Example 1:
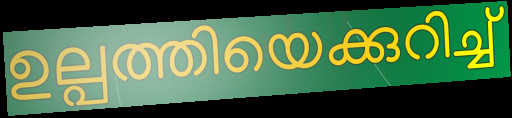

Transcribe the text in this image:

ഉല്പത്തിയെക്കുറിച്ച്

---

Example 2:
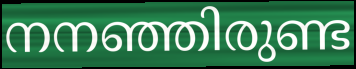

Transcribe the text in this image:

നനഞ്ഞിരുണ്ട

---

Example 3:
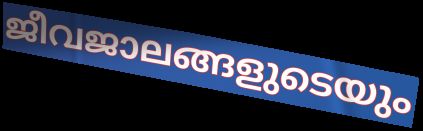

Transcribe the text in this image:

ജീവജാലങ്ങളുടെയും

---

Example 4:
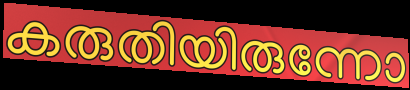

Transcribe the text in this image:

കരുതിയിരുന്നോ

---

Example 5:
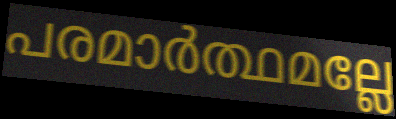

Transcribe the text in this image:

പരമാർത്ഥമല്ലേ